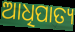
ଆଧିପାତ୍ୟ